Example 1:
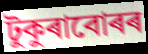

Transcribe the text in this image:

টুকুৰাবোৰৰ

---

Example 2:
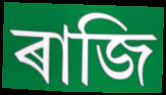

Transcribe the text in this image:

ৰাজি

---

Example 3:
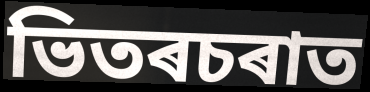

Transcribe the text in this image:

ভিতৰচৰাত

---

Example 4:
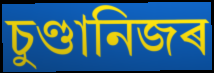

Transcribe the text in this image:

চুণ্ডানিজৰ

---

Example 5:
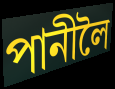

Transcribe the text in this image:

পানীলৈ